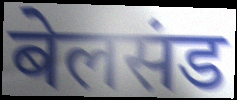
बेलसंड